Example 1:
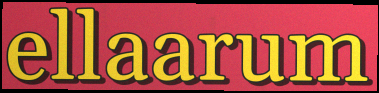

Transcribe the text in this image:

ellaarum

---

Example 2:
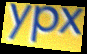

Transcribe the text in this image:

ypx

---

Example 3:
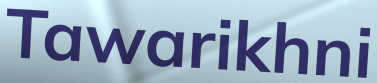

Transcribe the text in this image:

Tawarikhni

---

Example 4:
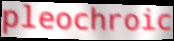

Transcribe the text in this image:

pleochroic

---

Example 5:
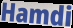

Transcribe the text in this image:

Hamdi